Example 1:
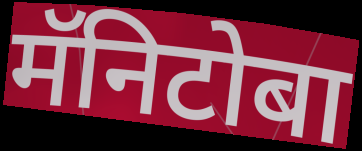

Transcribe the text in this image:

मॅनिटोबा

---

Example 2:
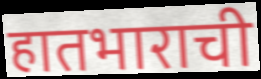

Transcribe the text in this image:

हातभाराची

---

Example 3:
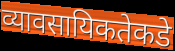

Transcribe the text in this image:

व्यावसायिकतेकडे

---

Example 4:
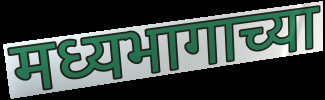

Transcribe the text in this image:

मध्यभागाच्या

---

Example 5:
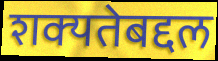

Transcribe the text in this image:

शक्यतेबद्दल